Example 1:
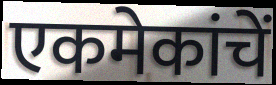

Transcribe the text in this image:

एकमेकांचें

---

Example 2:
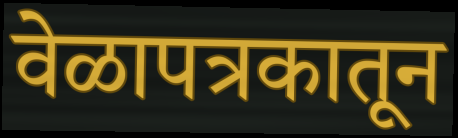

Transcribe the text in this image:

वेळापत्रकातून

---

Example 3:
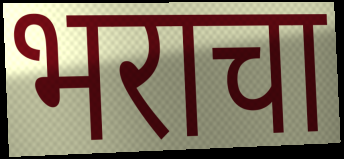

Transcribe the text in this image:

भराचा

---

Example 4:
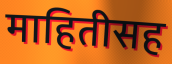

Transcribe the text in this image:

माहितीसह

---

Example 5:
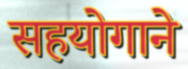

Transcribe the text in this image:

सहयोगाने